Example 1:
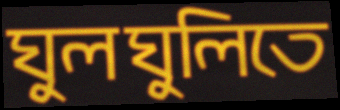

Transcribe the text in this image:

ঘুলঘুলিতে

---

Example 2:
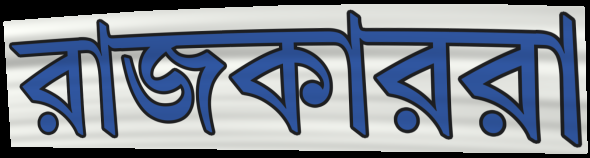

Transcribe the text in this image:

রাজকাররা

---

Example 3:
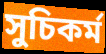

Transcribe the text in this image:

সুচিকর্ম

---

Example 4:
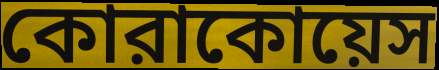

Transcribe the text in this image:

কোরাকোয়েস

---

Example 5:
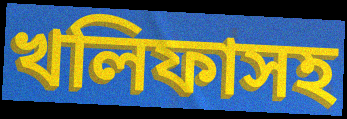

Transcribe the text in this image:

খলিফাসহ